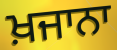
ਖ਼ਜਾਨਾ